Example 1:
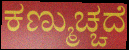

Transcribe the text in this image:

ಕಣ್ಮುಚ್ಚದೆ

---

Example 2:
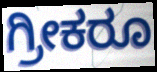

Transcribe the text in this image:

ಗ್ರೀಕರೂ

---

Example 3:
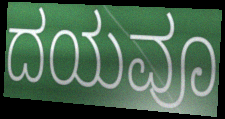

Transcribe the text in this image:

ದಯವೂ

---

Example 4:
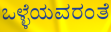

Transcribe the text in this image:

ಒಳ್ಳೆಯವರಂತೆ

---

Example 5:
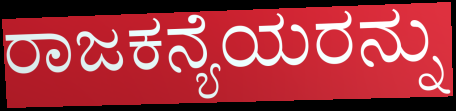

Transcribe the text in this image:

ರಾಜಕನ್ಯೆಯರನ್ನು